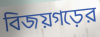
বিজয়গড়ের